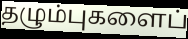
தழும்புகளைப்